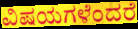
ವಿಷಯಗಳೆಂದರೆ